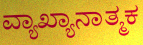
ವ್ಯಾಖ್ಯಾನಾತ್ಮಕ